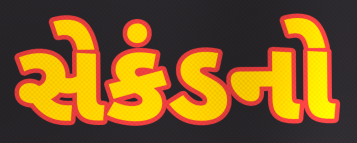
સેકંડનો